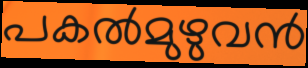
പകൽമുഴുവൻ